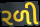
રળી